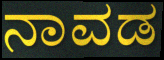
ನಾವಡ